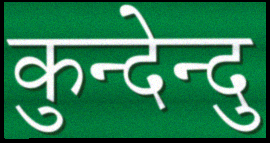
कुन्देन्दु